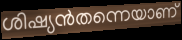
ശിഷ്യൻതന്നെയാണ്